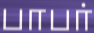
பாபர்